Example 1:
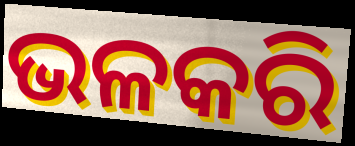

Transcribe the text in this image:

ଭଳକରି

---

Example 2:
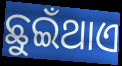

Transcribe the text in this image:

ଛୁଇଁଥାଏ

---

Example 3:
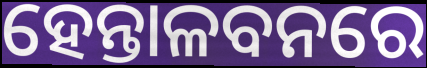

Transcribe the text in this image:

ହେନ୍ତାଳବନରେ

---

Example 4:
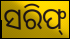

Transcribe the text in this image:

ସରିଫ୍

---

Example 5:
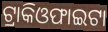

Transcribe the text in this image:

ଟ୍ରାକିଓଫାଇଟା